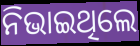
ନିଭାଇଥିଲେ